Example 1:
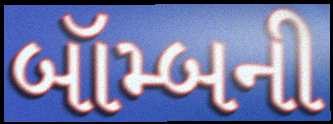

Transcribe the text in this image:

બૉમ્બની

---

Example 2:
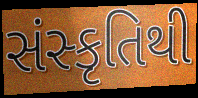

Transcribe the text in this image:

સંસ્કૃતિથી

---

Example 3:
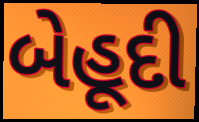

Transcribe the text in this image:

બેહૂદી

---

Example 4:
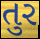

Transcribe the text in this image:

તુર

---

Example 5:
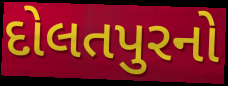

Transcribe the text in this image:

દોલતપુરનો